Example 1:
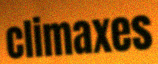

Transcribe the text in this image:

climaxes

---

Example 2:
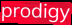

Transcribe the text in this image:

prodigy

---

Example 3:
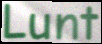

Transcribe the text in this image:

Lunt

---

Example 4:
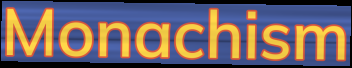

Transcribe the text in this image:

Monachism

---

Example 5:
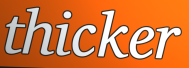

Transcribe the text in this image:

thicker